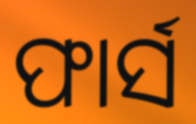
ଫାର୍ସ